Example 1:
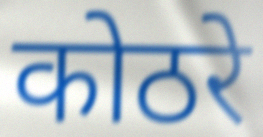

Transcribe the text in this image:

कोठरे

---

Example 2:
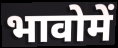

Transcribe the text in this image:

भावोमें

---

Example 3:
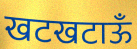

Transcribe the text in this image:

खटखटाऊँ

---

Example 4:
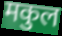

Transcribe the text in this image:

मकुल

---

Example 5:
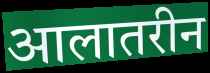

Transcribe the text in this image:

आलातरीन